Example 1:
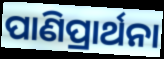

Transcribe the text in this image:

ପାଣିପ୍ରାର୍ଥନା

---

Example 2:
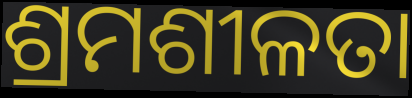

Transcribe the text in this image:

ଶ୍ରମଶୀଳତା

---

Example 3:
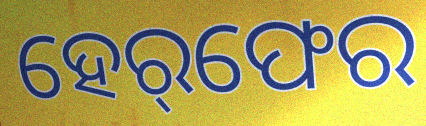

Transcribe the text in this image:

ହେର୍‌ଫେର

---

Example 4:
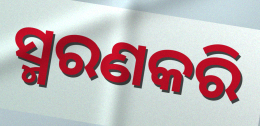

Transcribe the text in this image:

ସ୍ମରଣକରି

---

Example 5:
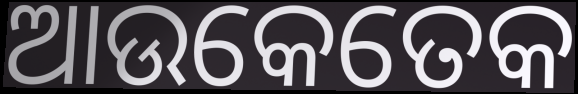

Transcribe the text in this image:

ଆଉକେତେକ